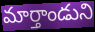
మార్తాండుని